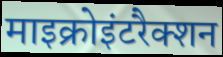
माइक्रोइंटरैक्शन